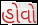
હોવો